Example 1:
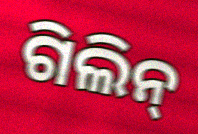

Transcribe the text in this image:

ଗିଲିନ୍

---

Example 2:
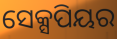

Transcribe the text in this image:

ସେକ୍ସପିୟର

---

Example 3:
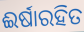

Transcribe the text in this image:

ଈର୍ଷାରହିତ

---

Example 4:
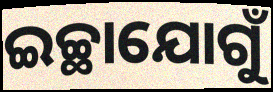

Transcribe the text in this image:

ଇଚ୍ଛାଯୋଗୁଁ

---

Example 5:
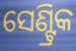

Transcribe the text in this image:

ସେଣ୍ଟ୍ରିକ